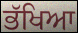
ਭੱਖਿਆ